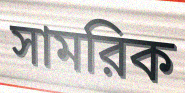
সামরিক